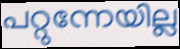
പറ്റുന്നേയില്ല